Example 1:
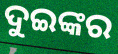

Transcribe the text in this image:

ଦୁଇଙ୍କର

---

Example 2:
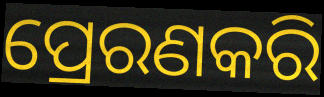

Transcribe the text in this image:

ପ୍ରେରଣକରି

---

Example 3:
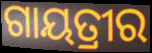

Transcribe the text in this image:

ଗାୟତ୍ରୀର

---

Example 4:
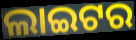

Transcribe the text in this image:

ଲାଇଟର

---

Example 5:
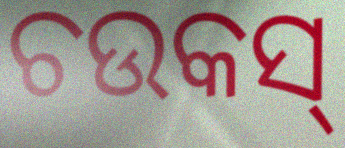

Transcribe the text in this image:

ଚଉକସ୍